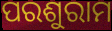
ପରଶୁରାମ